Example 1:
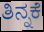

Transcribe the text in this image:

ತಿನ್ನಕೆ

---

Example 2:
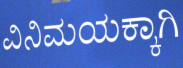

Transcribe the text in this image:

ವಿನಿಮಯಕ್ಕಾಗಿ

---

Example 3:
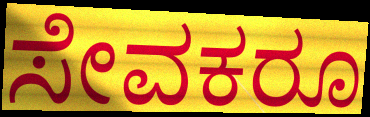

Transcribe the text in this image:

ಸೇವಕರೂ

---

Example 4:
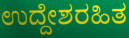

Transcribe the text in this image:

ಉದ್ದೇಶರಹಿತ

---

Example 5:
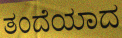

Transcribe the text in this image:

ತಂದೆಯಾದ